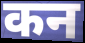
कन